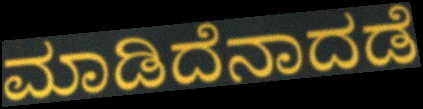
ಮಾಡಿದೆನಾದಡೆ